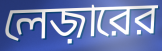
লেজ়ারের